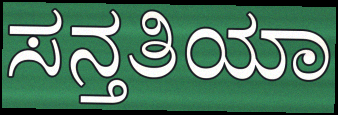
ಸನ್ತತಿಯಾ